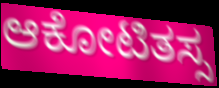
ಆಕೋಟಿತಸ್ಸ